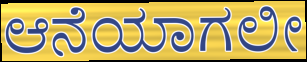
ಆನೆಯಾಗಲೀ